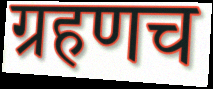
ग्रहणच